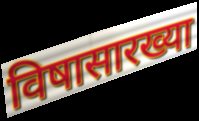
विषासारख्या